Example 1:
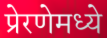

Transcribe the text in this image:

प्रेरणेमध्ये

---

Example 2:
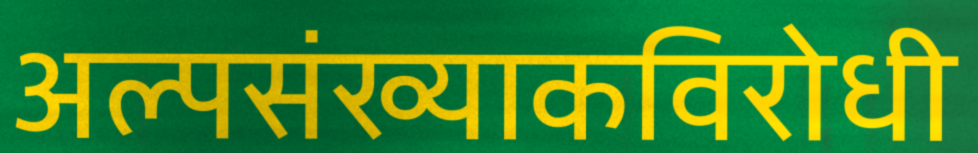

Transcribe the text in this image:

अल्पसंख्याकविरोधी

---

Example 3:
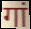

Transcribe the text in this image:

गां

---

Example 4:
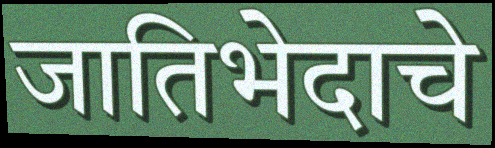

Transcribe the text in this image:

जातिभेदाचे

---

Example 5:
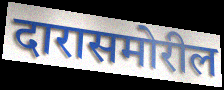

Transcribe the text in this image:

दारासमोरील